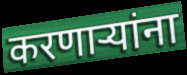
करणाऱ्यांना